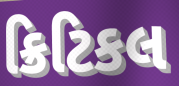
ક્રિટિકલ